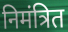
निमंत्रित